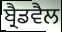
ਬ੍ਰੈਡਵੈਲ